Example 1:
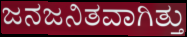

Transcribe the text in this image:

ಜನಜನಿತವಾಗಿತ್ತು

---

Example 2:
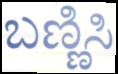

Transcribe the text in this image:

ಬಣ್ಣಿಸಿ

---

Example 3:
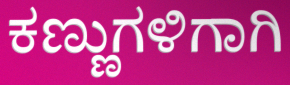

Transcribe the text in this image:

ಕಣ್ಣುಗಳಿಗಾಗಿ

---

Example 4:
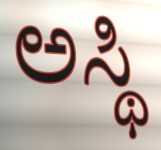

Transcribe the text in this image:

ಅಸ್ಥಿ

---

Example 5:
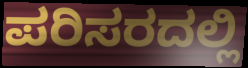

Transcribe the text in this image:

ಪರಿಸರದಲ್ಲಿ